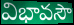
విభావసౌ